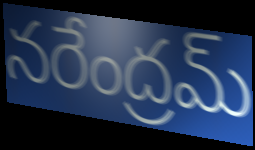
నరేంద్రమ్